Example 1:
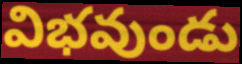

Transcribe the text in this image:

విభవుండు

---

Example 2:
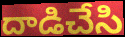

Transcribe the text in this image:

దాడిచేసి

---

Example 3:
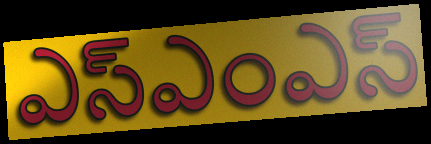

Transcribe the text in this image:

ఎస్ఎంఎస్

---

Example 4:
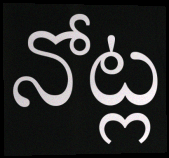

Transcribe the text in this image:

నోట్ల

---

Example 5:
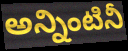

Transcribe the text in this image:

అన్నింటినీ